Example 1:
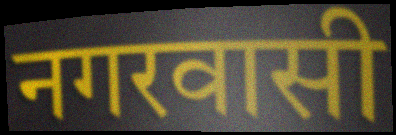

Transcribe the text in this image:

नगरवासी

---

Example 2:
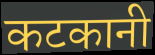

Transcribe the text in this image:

कटकानी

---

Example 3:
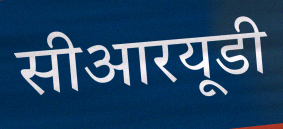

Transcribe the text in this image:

सीआरयूडी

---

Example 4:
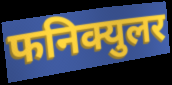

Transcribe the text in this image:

फनिक्युलर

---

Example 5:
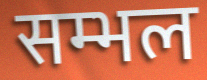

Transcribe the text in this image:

सम्भल